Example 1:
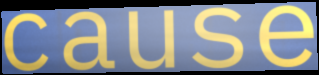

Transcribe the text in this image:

cause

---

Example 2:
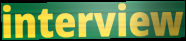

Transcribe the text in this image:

interview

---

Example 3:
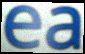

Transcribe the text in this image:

ea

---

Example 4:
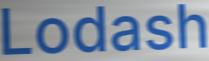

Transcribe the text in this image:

Lodash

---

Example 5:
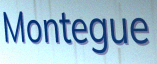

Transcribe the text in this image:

Montegue